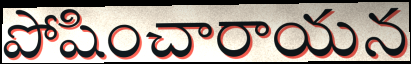
పోషించారాయన